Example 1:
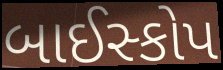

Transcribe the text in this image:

બાઈસ્કોપ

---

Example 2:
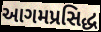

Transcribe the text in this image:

આગમપ્રસિદ્ધ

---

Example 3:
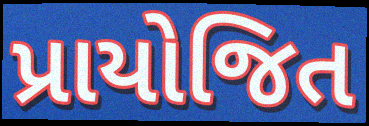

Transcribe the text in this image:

પ્રાયોજિત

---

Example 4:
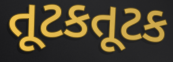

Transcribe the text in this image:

તૂટકતૂટક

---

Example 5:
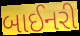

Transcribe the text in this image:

બાઈનરી